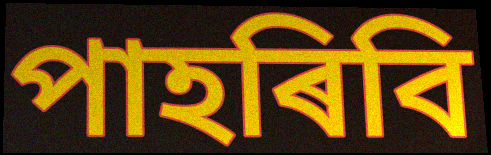
পাহৰিবি